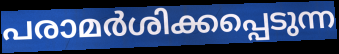
പരാമർശിക്കപ്പെടുന്ന